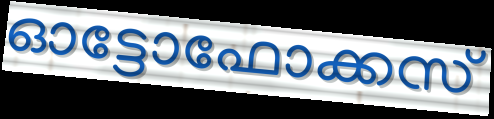
ഓട്ടോഫോക്കസ്